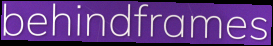
behindframes